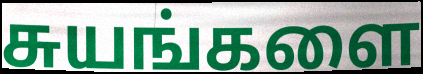
சுயங்களை